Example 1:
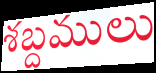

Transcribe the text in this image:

శబ్దములు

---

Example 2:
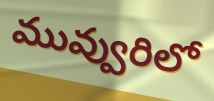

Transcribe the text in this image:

మువ్వురిలో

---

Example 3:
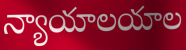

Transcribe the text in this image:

న్యాయాలయాల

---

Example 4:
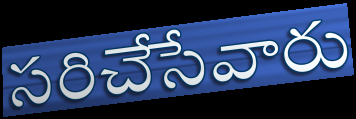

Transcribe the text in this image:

సరిచేసేవారు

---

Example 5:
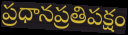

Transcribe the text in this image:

ప్రధానప్రతిపక్షం